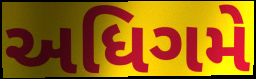
અધિગમે